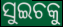
ସୁଇଚକୁ